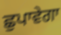
ਛੁਪਾਵੇਗਾ